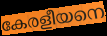
കേരളീയനെ